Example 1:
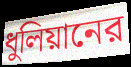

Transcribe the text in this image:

ধুলিয়ানের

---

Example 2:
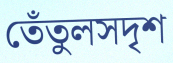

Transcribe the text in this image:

তেঁতুলসদৃশ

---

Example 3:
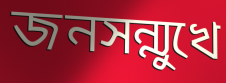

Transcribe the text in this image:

জনসন্মুখে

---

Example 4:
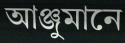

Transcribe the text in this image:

আঞ্জুমানে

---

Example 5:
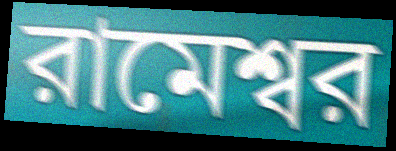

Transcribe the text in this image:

রামেশ্বর